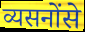
व्यसनोंसे